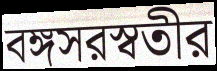
বঙ্গসরস্বতীর